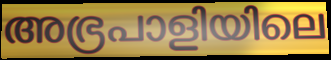
അഭ്രപാളിയിലെ